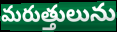
మరుత్తులును